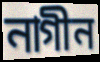
নাগীন